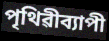
পৃথিৱীব্যাপী